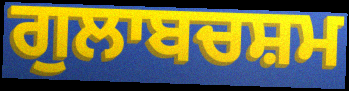
ਗੁਲਾਬਚਸ਼ਮ